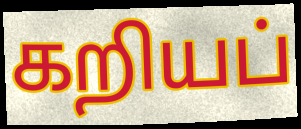
கறியப்